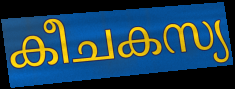
കീചകസ്യ